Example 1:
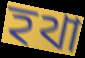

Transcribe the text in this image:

হথা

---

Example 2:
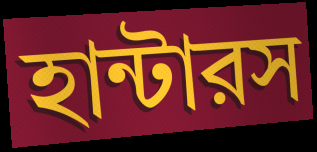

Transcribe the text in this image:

হান্টারস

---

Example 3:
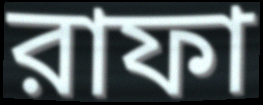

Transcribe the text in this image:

রাফা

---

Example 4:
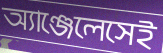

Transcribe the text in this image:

অ্যাঞ্জেলেসেই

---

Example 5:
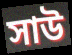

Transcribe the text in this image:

সাউ